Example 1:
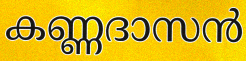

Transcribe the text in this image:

കണ്ണദാസൻ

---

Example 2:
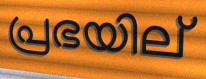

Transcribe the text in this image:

പ്രഭയില്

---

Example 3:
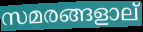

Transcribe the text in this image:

സമരങ്ങളാല്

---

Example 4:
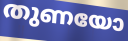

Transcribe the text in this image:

തുണയോ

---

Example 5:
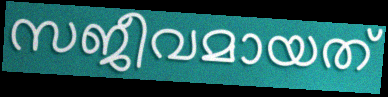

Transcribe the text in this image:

സജീവമായത്